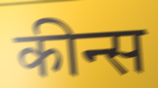
कीन्स